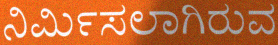
ನಿರ್ಮಿಸಲಾಗಿರುವ